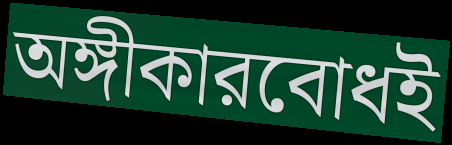
অঙ্গীকারবোধই